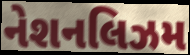
નેશનલિઝમ